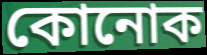
কোনোক